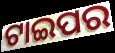
ଟାଇପର